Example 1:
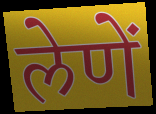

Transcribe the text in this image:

लेणें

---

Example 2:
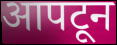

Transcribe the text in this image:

आपटून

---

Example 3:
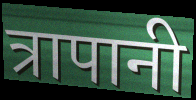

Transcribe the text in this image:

त्रापानी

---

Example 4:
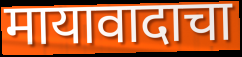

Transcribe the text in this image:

मायावादाचा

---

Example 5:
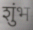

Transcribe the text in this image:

शुंभ